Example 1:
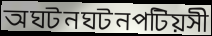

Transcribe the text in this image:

অঘটনঘটনপটিয়সী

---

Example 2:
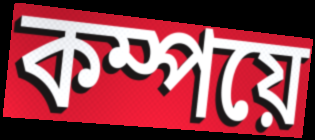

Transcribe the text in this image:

কম্পয়ে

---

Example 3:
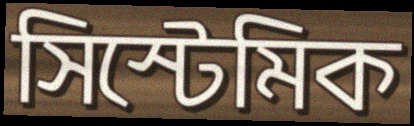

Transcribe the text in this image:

সিস্টেমিক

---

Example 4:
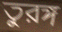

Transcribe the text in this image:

তুরঙ্গ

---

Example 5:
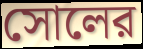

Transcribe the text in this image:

সোলের